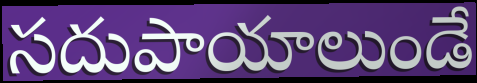
సదుపాయాలుండే